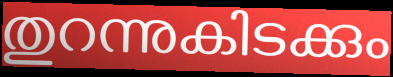
തുറന്നുകിടക്കും